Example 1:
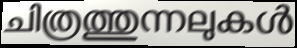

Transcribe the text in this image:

ചിത്രത്തുന്നലുകൾ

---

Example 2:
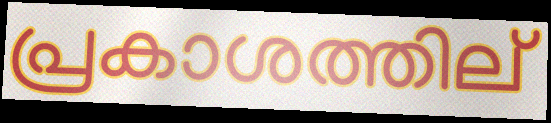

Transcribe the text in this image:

പ്രകാശത്തില്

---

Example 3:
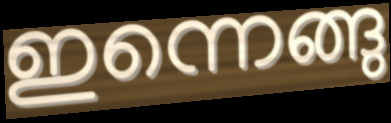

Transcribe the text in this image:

ഇന്നെങ്ങു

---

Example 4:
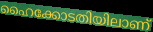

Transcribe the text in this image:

ഹൈക്കോടതിയിലാണ്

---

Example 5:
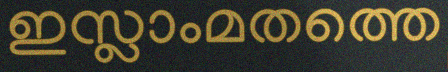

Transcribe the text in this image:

ഇസ്ലാംമതത്തെ